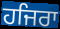
ਹਜਿਰਾ